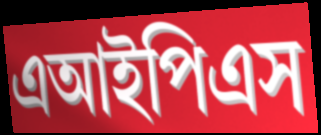
এআইপিএস